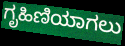
ಗೃಹಿಣಿಯಾಗಲು